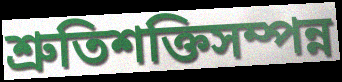
শ্রুতিশক্তিসম্পন্ন